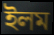
ইলম